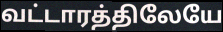
வட்டாரத்திலேயே